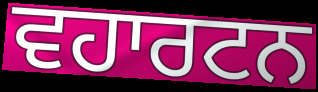
ਵਹਾਰਟਨ